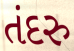
તંદરુ